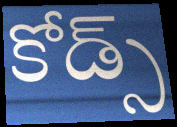
కోడ్స్